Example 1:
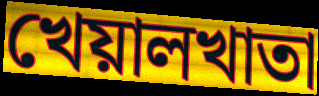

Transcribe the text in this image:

খেয়ালখাতা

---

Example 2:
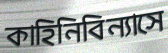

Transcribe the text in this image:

কাহিনিবিন্যাসে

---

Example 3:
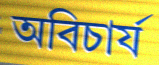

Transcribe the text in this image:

অবিচার্য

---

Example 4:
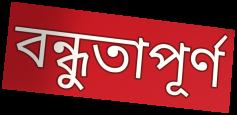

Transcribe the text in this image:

বন্ধুতাপূর্ণ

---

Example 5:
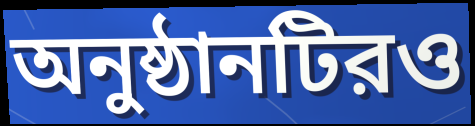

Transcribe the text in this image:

অনুষ্ঠানটিরও